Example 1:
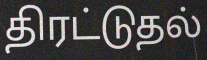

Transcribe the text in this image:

திரட்டுதல்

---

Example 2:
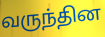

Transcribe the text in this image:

வருந்தின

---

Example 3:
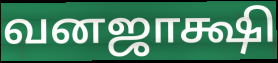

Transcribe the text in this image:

வனஜாக்ஷி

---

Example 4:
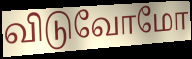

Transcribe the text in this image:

விடுவோமோ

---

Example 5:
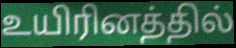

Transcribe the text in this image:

உயிரினத்தில்